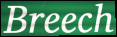
Breech